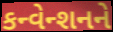
કન્વેન્શનને